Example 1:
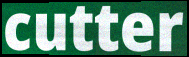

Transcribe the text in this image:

cutter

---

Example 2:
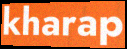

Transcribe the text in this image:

kharap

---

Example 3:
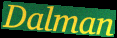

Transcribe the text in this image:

Dalman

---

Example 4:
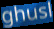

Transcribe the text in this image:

ghusl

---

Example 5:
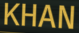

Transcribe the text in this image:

KHAN